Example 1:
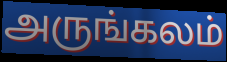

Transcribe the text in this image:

அருங்கலம்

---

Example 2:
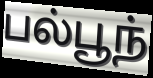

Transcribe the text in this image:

பல்பூந்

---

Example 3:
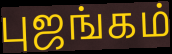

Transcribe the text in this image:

புஜங்கம்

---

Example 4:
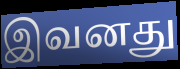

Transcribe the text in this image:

இவனது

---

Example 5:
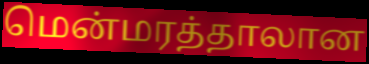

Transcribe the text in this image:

மென்மரத்தாலான